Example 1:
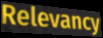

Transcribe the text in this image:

Relevancy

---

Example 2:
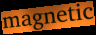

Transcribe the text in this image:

magnetic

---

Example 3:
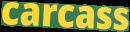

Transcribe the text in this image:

carcass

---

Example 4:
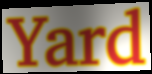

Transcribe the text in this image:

Yard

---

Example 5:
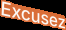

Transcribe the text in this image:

Excusez